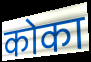
कोका